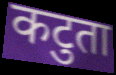
कटुता